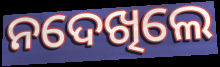
ନଦେଖିଲେ